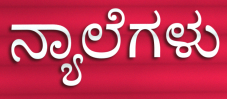
ನ್ಯಾಲೆಗಳು